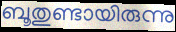
ബൂതുണ്ടായിരുന്നു